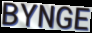
BYNGE